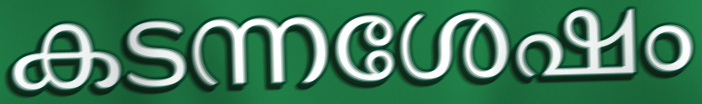
കടന്നശേഷം